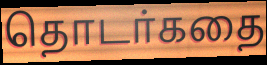
தொடர்கதை